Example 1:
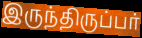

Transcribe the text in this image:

இருந்திருப்பர்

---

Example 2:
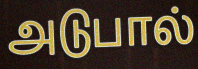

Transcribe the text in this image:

அடுபால்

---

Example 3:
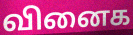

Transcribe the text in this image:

வினைக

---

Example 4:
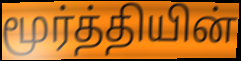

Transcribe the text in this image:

மூர்த்தியின்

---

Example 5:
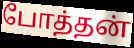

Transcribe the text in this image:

போத்தன்